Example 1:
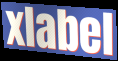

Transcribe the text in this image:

xlabel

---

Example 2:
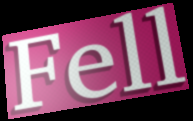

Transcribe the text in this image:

Fell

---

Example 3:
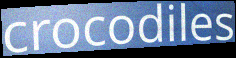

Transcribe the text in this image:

crocodiles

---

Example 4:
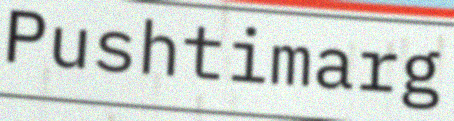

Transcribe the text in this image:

Pushtimarg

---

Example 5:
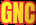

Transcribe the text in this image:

GNC